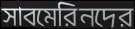
সাবমেরিনদের